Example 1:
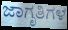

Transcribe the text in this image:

ಜಾಗೃತಿಗಳ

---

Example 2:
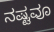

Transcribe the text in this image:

ನಷ್ಟವೂ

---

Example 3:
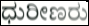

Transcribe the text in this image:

ಧುರೀಣರು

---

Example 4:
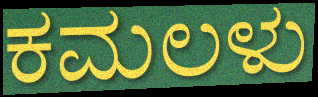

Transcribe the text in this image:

ಕಮಲಳು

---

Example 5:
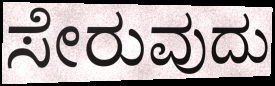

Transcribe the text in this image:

ಸೇರುವುದು